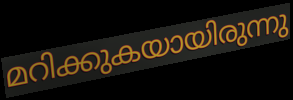
മറിക്കുകയായിരുന്നു